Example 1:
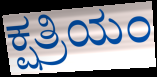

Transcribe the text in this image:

ಕ್ಷತ್ರಿಯಂ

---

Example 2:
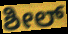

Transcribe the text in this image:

ಶೀಲ್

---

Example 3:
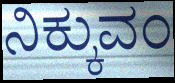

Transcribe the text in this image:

ನಿಕ್ಕುವಂ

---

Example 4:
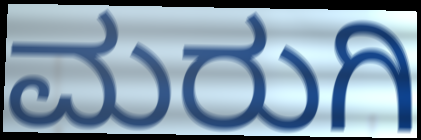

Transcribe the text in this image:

ಮರುಗಿ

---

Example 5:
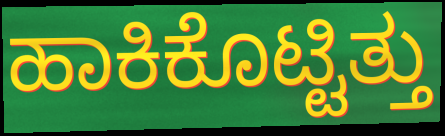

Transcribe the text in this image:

ಹಾಕಿಕೊಟ್ಟಿತ್ತು